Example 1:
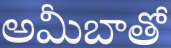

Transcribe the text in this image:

అమీబాతో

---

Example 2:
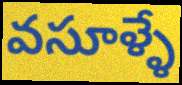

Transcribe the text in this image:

వసూళ్ళే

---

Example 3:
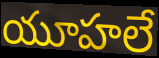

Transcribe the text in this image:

యూహలే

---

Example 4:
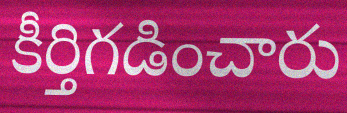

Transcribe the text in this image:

కీర్తిగడించారు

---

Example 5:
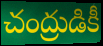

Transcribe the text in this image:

చంద్రుడికీ